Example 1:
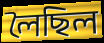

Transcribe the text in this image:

লৈছিল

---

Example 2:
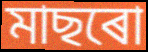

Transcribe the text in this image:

মাছৰো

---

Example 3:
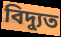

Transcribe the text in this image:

বিদ্যুত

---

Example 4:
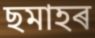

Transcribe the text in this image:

ছমাহৰ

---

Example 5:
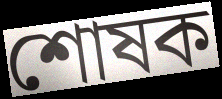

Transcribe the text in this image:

শোষক